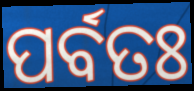
ପର୍ବତଃ